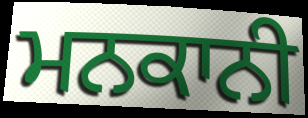
ਮਨਕਾਨੀ